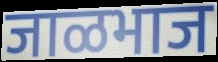
जाळभाज